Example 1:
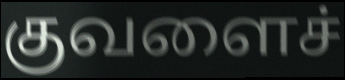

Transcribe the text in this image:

குவளைச்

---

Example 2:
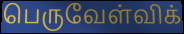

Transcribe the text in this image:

பெருவேள்விக்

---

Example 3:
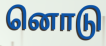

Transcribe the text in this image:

னொடு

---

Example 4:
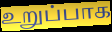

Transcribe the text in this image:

உறுப்பாக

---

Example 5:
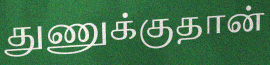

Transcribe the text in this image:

துணுக்குதான்